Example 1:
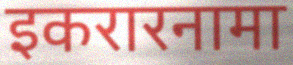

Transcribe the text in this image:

इकरारनामा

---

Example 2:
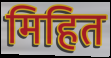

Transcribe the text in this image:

मिहित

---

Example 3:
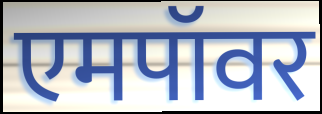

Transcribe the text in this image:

एमपॉवर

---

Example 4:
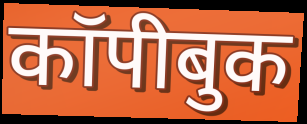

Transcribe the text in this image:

कॉपीबुक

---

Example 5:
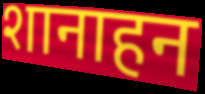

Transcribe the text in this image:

शानाहन